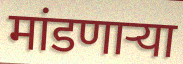
मांडणार्‍या